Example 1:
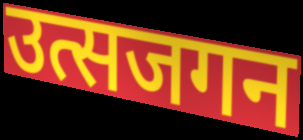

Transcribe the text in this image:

उत्सजगन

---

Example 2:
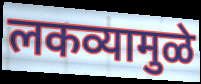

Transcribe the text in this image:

लकव्यामुळे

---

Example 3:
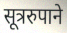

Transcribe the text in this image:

सूत्ररुपाने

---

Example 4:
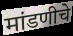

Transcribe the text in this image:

मांडणीचे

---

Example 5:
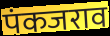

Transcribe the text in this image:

पंकजराव